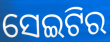
ସେଇଟିର